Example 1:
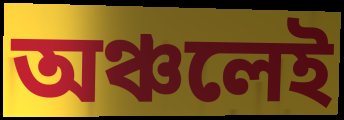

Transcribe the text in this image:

অঞ্চলেই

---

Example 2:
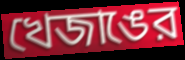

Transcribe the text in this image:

খেজাঙের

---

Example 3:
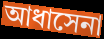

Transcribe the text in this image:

আধাসেনা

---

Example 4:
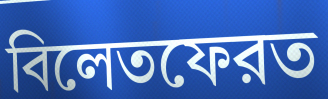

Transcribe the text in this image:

বিলেতফেরত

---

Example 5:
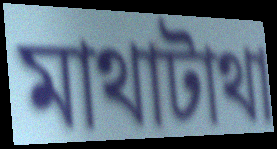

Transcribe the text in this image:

মাথাটাথা